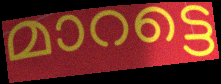
മാറട്ടെ